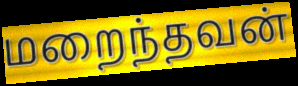
மறைந்தவன்